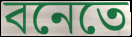
বনেতে